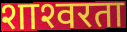
शाश्वरता